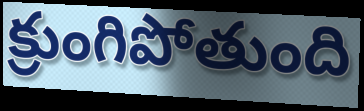
క్రుంగిపోతుంది